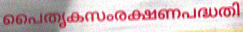
പൈതൃകസംരക്ഷണപദ്ധതി